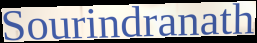
Sourindranath